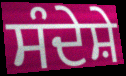
ਸੰਦੇਸ਼ੇ